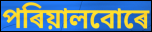
পৰিয়ালবোৰে